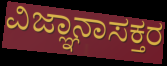
ವಿಜ್ಞಾನಾಸಕ್ತರ